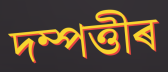
দম্পত্তীৰ